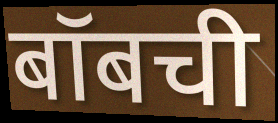
बॉबची